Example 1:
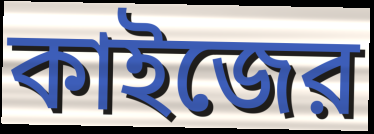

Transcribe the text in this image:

কাইজের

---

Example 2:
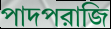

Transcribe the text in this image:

পাদপরাজি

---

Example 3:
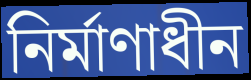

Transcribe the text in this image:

নির্মাণাধীন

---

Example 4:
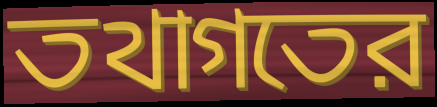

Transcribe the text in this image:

তথাগতের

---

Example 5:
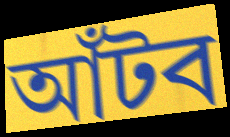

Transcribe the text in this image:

আঁটব